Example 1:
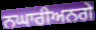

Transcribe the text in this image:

ਨਘਾਰੀਅਨਗੇ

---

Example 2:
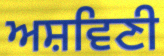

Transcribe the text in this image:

ਅਸ਼ਵਿਣੀ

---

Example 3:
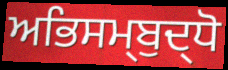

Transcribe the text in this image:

ਅਭਿਸਮ੍ਬੁਦ੍ਧੋ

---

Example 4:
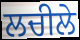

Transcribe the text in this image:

ਲਚੀਲੇ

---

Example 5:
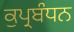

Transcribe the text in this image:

ਕੁਪ੍ਰਬੰਧਨ